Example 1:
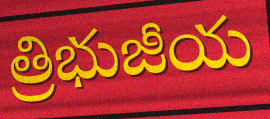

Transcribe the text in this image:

త్రిభుజీయ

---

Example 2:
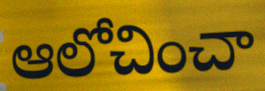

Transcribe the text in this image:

ఆలోచించా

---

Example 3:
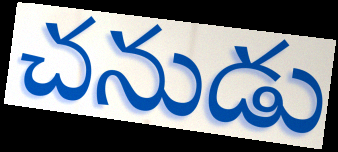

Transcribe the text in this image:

చనుడు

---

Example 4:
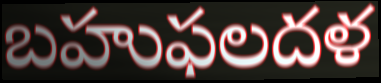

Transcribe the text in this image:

బహుఫలదళ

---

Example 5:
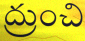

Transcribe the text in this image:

ద్రుంచి